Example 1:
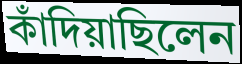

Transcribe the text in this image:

কাঁদিয়াছিলেন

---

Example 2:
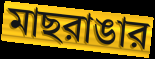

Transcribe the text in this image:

মাছরাঙার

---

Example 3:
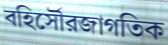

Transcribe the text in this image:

বহির্সৌরজাগতিক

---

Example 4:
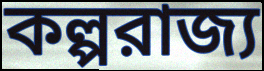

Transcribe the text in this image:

কল্পরাজ্য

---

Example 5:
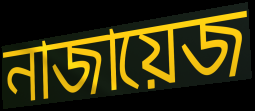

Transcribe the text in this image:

নাজায়েজ